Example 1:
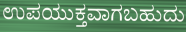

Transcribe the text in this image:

ಉಪಯುಕ್ತವಾಗಬಹುದು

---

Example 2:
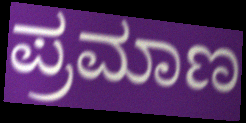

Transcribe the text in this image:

ಪ್ರಮಾಣ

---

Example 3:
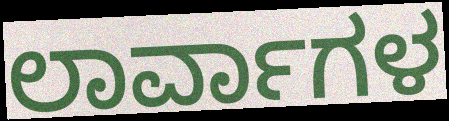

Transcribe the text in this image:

ಲಾರ್ವಾಗಳ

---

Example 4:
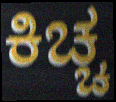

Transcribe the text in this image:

ಕಿಚ್ಚ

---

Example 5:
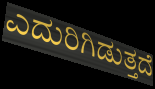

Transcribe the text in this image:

ಎದುರಿಗಿಡುತ್ತದೆ